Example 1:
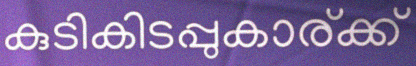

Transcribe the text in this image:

കുടികിടപ്പുകാര്ക്ക്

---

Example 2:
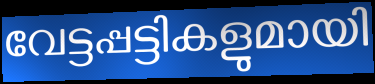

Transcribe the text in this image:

വേട്ടപ്പട്ടികളുമായി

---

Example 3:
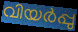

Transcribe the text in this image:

വിയർപ്പു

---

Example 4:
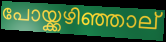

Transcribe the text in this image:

പോയ്ക്കഴിഞ്ഞാല്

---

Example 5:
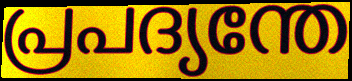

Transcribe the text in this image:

പ്രപദ്യന്തേ